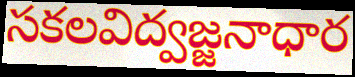
సకలవిద్వజ్జనాధార